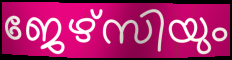
ജേഴ്സിയും